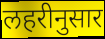
लहरीनुसार